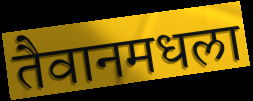
तैवानमधला